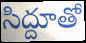
సిద్దూతో